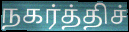
நகர்த்திச்